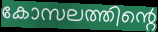
കോസലത്തിന്റെ